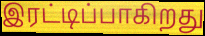
இரட்டிப்பாகிறது